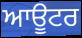
ਆਊਟਰ